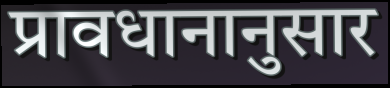
प्रावधानानुसार